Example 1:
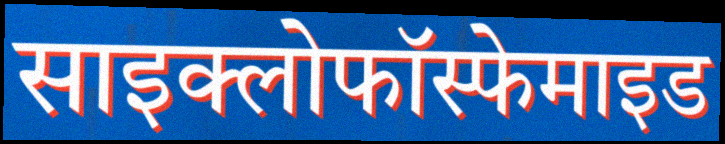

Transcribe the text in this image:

साइक्लोफॉस्फेमाइड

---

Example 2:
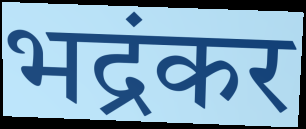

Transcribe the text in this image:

भद्रंकर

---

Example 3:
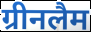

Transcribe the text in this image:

ग्रीनलैम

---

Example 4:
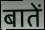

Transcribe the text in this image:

बातें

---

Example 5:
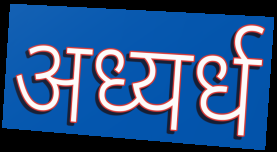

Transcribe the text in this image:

अध्यर्ध